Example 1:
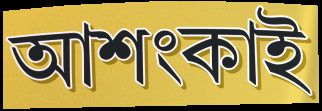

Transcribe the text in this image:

আশংকাই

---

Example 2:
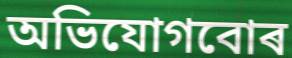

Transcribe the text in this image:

অভিযোগবোৰ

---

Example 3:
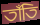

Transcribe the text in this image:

তাঁতি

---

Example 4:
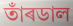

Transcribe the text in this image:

তাঁৰডাল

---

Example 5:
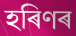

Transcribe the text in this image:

হৰিণৰ